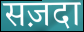
सज़दा